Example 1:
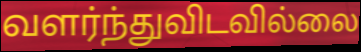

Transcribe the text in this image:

வளர்ந்துவிடவில்லை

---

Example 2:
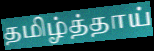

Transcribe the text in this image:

தமிழ்த்தாய்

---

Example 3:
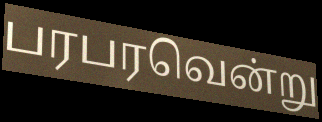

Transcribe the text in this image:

பரபரவென்று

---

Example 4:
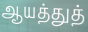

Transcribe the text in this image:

ஆயத்துத்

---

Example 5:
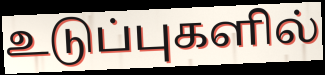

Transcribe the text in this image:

உடுப்புகளில்